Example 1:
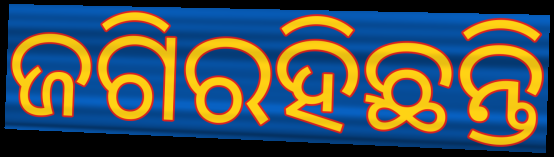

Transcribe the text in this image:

ଜଗିରହିଛନ୍ତି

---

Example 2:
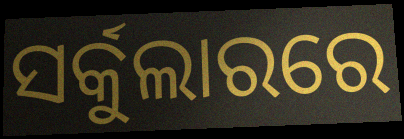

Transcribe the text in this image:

ସର୍କୁଲାରରେ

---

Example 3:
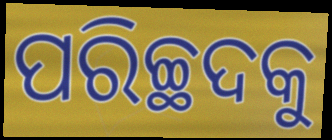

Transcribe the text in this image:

ପରିଚ୍ଛଦକୁ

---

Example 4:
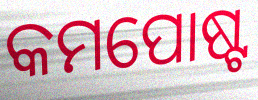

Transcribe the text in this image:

କମପୋଷ୍ଟ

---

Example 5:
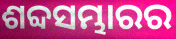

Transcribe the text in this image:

ଶବ୍ଦସମ୍ଭାରର